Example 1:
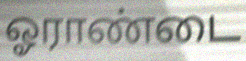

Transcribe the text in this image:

ஓராண்டை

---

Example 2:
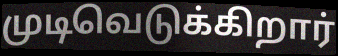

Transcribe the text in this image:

முடிவெடுக்கிறார்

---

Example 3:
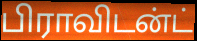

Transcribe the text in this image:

பிராவிடன்ட்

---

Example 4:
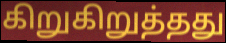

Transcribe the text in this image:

கிறுகிறுத்தது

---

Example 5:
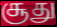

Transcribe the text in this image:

சூது